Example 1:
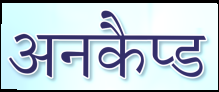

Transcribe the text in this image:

अनकैप्ड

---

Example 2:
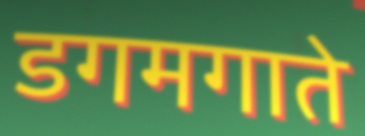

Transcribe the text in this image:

डगमगाते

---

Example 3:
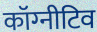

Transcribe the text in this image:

कॉग्‍नीटिव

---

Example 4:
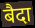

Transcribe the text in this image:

बैदा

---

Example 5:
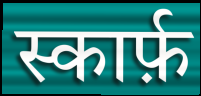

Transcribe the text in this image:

स्कार्फ़